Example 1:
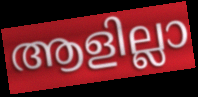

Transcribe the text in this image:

ആളില്ലാ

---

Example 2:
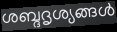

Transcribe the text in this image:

ശബ്ദദൃശ്യങ്ങൾ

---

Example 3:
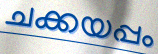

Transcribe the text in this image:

ചക്കയപ്പം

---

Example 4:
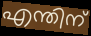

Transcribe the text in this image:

എന്തിന്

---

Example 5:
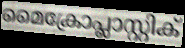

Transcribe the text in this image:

മൈക്രോപ്ലാസ്റ്റിക്